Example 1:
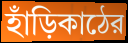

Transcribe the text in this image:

হাঁড়িকাঠের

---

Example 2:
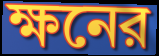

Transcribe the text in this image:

ক্ষনের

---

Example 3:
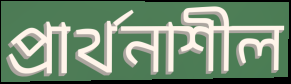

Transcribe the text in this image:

প্রার্থনাশীল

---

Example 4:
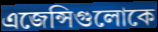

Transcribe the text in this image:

এজেন্সিগুলোকে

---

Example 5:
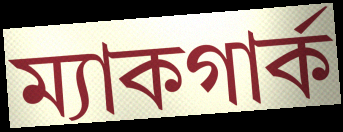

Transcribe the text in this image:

ম্যাকগার্ক